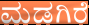
ಮಡಗಿರೆ